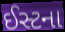
ઈસ્ટના